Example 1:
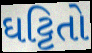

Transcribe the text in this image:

ઘટ્ટિતો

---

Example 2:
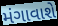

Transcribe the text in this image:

મંગાવાશે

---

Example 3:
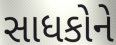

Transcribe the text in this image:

સાધકોને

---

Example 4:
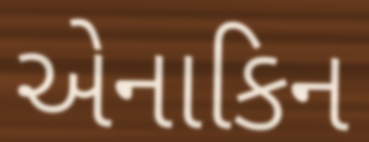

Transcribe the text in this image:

એનાકિન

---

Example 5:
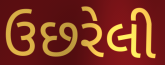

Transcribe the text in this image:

ઉછરેલી